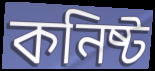
কনিষ্ট